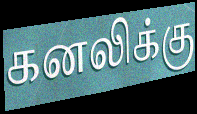
கனலிக்கு